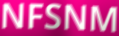
NFSNM